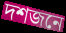
দশজনে